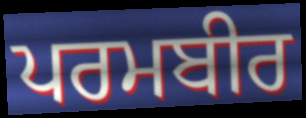
ਪਰਮਬੀਰ